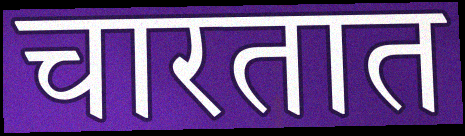
चारतात